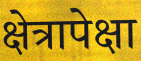
क्षेत्रापेक्षा